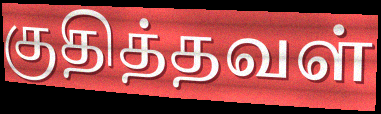
குதித்தவள்